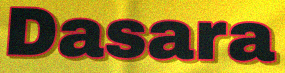
Dasara